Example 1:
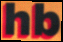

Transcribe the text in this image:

hb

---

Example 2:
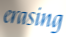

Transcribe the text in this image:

erasing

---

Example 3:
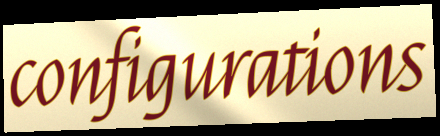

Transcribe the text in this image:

configurations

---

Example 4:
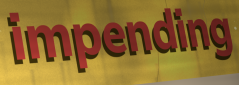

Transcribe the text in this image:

impending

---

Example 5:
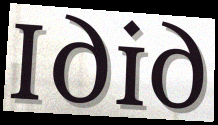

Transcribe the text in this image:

Idid